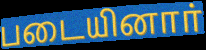
படையினார்